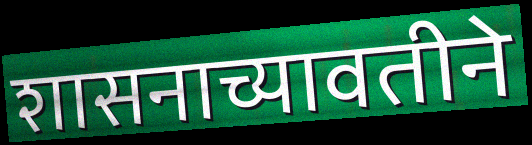
शासनाच्यावतीने